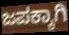
ಜಪಕ್ಕಾಗಿ